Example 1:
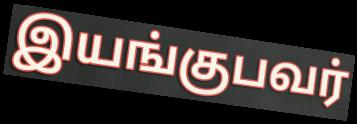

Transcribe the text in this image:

இயங்குபவர்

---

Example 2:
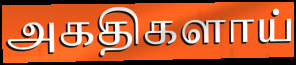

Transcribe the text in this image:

அகதிகளாய்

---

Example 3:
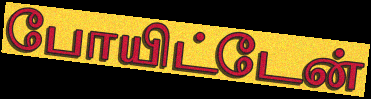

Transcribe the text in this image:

போயிட்டேன்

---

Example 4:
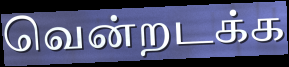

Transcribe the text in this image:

வென்றடக்க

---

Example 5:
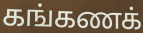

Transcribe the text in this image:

கங்கணக்